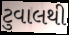
ટુવાલથી